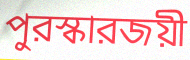
পুরস্কারজয়ী